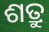
ଶତ୍ରୁ